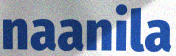
naanila